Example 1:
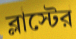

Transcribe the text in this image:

ব্লাস্টের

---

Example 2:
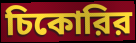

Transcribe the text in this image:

চিকোরির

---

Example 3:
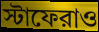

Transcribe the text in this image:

স্টাফেরাও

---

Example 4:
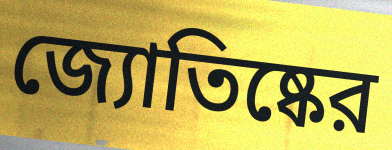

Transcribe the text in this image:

জ্যোতিষ্কের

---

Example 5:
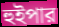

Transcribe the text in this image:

হুইপার